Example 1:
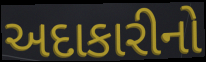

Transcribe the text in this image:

અદાકારીનો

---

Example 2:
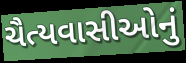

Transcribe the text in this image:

ચૈત્યવાસીઓનું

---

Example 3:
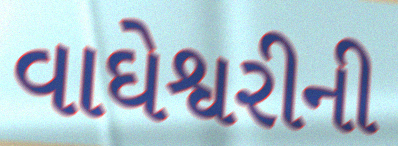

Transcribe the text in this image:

વાઘેશ્વરીની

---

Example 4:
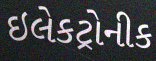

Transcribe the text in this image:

ઇલેકટ્રોનીક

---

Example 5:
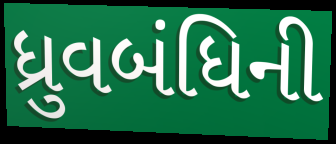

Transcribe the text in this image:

ધ્રુવબંધિની